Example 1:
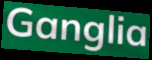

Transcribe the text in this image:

Ganglia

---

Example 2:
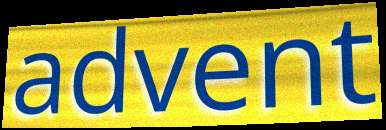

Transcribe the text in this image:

advent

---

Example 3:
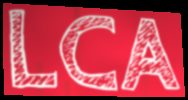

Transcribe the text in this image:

LCA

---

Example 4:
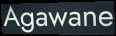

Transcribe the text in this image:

Agawane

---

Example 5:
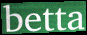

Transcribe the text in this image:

betta